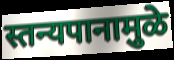
स्तन्यपानामुळे